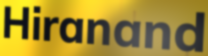
Hiranand